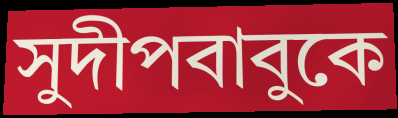
সুদীপবাবুকে